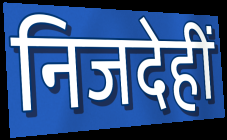
निजदेहीं